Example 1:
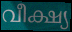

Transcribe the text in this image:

വീക്ഷ്യ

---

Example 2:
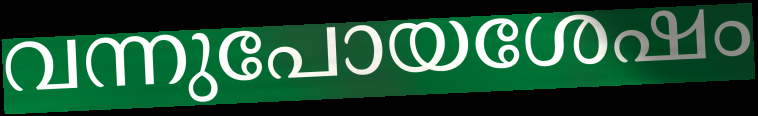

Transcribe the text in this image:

വന്നുപോയശേഷം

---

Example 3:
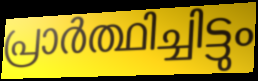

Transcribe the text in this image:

പ്രാർത്ഥിച്ചിട്ടും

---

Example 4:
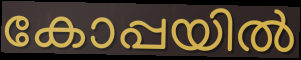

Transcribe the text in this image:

കോപ്പയിൽ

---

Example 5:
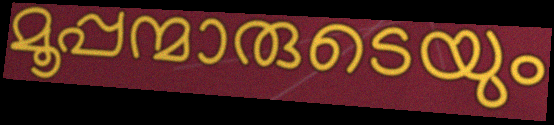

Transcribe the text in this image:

മൂപ്പന്മാരുടെയും